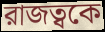
রাজত্বকে